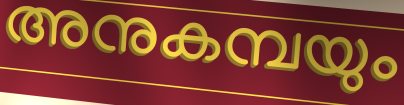
അനുകമ്പയും